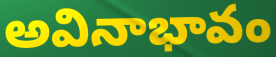
అవినాభావం